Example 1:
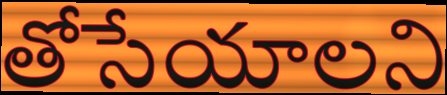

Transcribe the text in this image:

తోసేయాలని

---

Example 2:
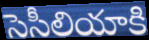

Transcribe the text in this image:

సెసీలియాకి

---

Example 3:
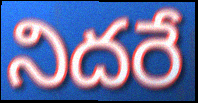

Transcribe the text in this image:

నిదరే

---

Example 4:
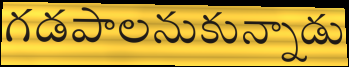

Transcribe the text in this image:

గడపాలనుకున్నాడు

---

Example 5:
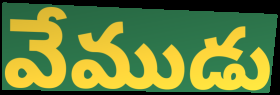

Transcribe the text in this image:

వేముడు